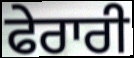
ਫੇਰਾਰੀ